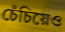
চেঁচিয়েও